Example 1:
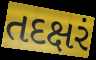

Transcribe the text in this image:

તદક્ષરં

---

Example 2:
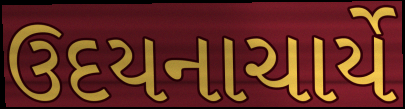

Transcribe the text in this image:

ઉદયનાચાર્યે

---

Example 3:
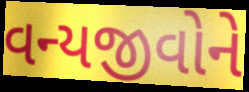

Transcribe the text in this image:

વન્યજીવોને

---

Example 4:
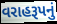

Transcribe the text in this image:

વરાહરૂપનું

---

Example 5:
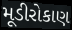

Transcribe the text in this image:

મૂડીરોકાણ